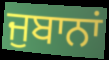
ਜੁਬਾਨਾਂ